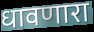
धावणारा